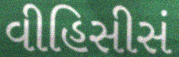
વીહિસીસં